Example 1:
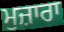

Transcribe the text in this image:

ਮੁਜ਼ਾਰਾ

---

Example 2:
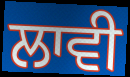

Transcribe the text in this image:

ਲਾਵੀ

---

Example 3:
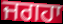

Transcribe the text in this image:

ਜਗਹਾ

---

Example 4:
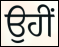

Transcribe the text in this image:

ਉਹੀਂ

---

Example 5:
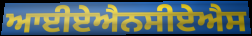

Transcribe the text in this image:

ਆਈਏਐਨਸੀਏਐਸ